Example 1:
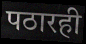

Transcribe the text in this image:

पठारही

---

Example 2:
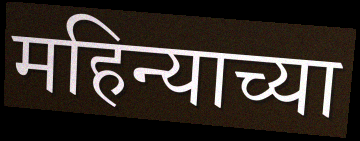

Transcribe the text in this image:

महिन्याच्या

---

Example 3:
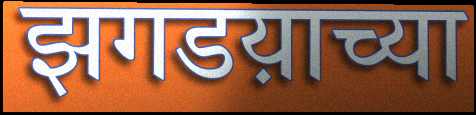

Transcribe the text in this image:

झगडय़ाच्या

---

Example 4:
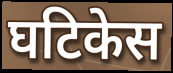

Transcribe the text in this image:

घटिकेस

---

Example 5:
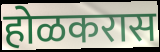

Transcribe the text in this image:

होळकरास